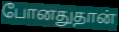
போனதுதான்